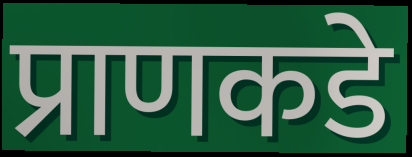
प्राणकडे